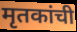
मृतकांची